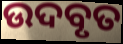
ଉଦବୃତ